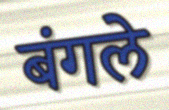
बंगले